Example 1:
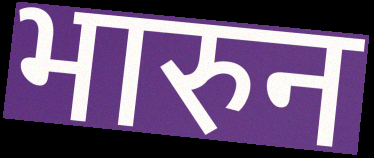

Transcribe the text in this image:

भारुन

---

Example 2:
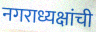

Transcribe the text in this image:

नगराध्यक्षांची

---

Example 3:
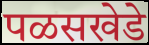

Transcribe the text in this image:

पळसखेडे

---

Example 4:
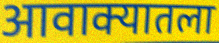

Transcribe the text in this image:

आवाक्यातला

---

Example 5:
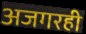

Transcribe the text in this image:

अजगरही